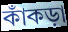
কাঁকড়া